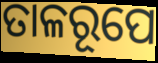
ତାଳରୂପେ